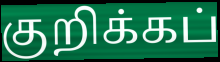
குறிக்கப்